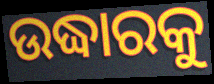
ଉଦ୍ଧାରକୁ